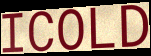
ICOLD